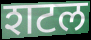
शटल